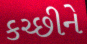
કચ્છીને